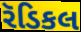
રૅડિકલ